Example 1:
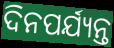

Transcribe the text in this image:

ଦିନପର୍ଯ୍ୟନ୍ତ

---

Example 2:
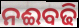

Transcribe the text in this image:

ନଈବଢି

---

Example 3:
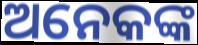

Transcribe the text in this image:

ଅନେକଙ୍କ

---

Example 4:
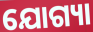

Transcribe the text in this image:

ଯୋଗ୍ୟା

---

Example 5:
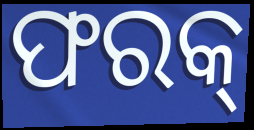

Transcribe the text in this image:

ଫରକ୍